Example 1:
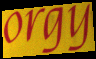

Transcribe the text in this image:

orgy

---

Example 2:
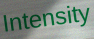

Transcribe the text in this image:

Intensity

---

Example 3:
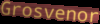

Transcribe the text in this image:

Grosvenor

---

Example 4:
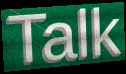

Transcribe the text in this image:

Talk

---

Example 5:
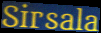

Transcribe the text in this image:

Sirsala